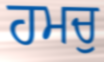
ਹਮਚੁ